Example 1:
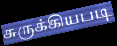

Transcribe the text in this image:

சுருக்கியபடி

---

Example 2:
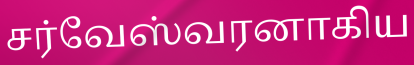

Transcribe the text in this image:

சர்வேஸ்வரனாகிய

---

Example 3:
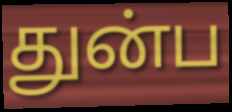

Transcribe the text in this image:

துன்ப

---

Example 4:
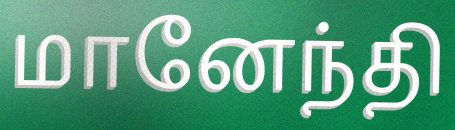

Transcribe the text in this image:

மானேந்தி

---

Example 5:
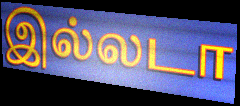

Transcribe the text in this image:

இல்லடா